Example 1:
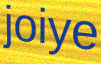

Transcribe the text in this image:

joiye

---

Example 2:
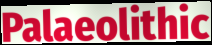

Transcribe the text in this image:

Palaeolithic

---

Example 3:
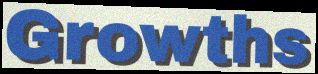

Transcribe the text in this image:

Growths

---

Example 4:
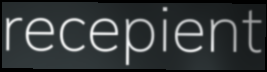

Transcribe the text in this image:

recepient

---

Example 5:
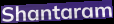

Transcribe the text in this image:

Shantaram